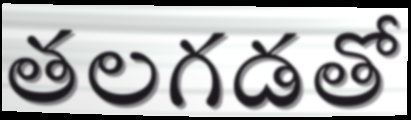
తలగడతో